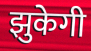
झुकेगी